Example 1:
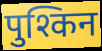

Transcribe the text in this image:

पुश्किन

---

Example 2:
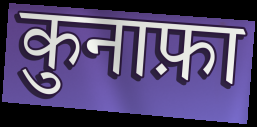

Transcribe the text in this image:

कुनाफ़ा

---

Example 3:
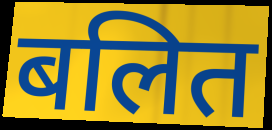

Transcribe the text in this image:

बलित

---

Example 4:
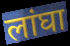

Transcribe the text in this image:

लांघा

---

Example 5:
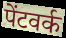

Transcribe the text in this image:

पेंटवर्क